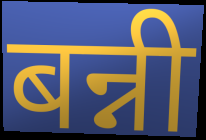
बन्नी